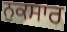
ਨੁਕਸਾਰ